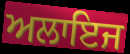
ਅਲਾਇਜ